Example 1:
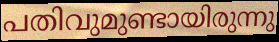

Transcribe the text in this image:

പതിവുമുണ്ടായിരുന്നു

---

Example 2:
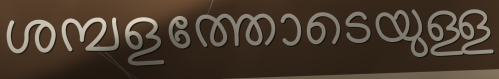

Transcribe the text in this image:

ശമ്പളത്തോടെയുള്ള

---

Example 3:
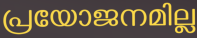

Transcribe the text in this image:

പ്രയോജനമില്ല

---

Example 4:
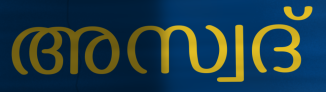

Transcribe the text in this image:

അസ്വദ്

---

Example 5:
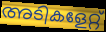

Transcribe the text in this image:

അടികളേറ്റ്